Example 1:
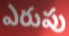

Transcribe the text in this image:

ఎరుపు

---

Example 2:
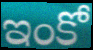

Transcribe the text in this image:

ఇంకో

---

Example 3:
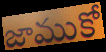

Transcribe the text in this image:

జాముకో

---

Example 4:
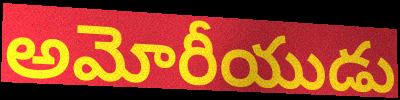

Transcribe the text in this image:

అమోరీయుడు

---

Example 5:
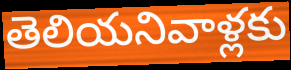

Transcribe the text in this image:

తెలియనివాళ్లకు